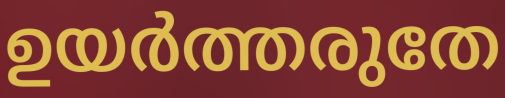
ഉയർത്തരുതേ